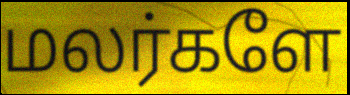
மலர்களே